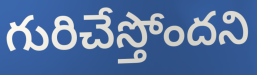
గురిచేస్తోందని